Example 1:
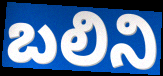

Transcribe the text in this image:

బలిని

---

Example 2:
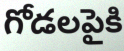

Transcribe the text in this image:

గోడలపైకి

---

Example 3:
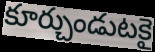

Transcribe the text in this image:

కూర్చుండుటకై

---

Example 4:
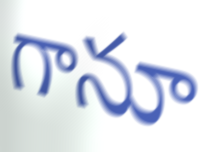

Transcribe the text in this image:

గానూ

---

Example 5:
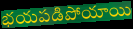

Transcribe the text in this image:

భయపడిపోయాయి